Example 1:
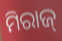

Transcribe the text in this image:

ମିରାଜ୍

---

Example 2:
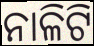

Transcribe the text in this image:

ନାଳିଟି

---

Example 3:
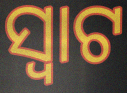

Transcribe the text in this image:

ସ୍ୱାଟ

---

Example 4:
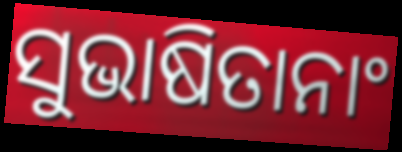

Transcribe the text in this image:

ସୁଭାଷିତାନାଂ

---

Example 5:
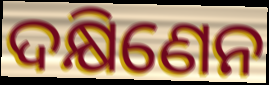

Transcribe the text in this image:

ଦକ୍ଷିଣେନ